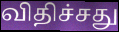
விதிச்சது